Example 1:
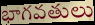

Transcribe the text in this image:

భాగవతులు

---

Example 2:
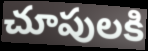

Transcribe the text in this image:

చూపులకి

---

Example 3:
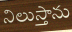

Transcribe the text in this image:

నిలుస్తాను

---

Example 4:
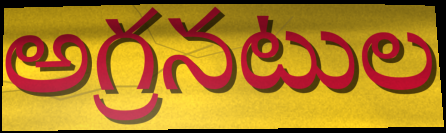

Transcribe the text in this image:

అగ్రనటుల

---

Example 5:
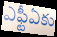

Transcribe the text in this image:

ఎఫ్టీఏకు